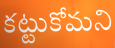
కట్టుకోమని